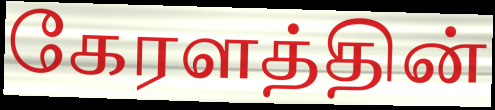
கேரளத்தின்